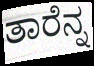
ತಾರೆನ್ನ